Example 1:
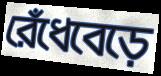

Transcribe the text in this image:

রেঁধেবেড়ে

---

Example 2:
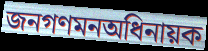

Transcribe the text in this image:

জনগণমনঅধিনায়ক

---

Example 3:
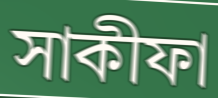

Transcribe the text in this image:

সাকীফা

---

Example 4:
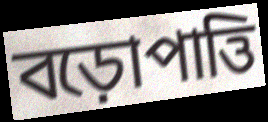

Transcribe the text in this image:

বড়োপাত্তি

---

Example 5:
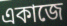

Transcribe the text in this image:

একাজে